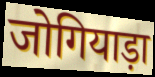
जोगियाड़ा